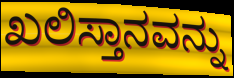
ಖಲಿಸ್ತಾನವನ್ನು